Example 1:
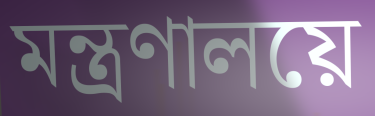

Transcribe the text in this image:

মন্ত্রণালয়ে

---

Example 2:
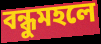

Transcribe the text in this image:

বন্ধুমহলে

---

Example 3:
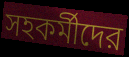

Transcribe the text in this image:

সহকর্মীদের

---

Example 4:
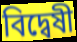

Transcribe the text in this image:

বিদ্বেষী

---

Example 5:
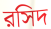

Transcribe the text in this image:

রসিদ